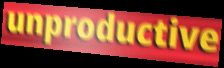
unproductive